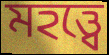
মহত্ত্বে